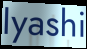
Iyashi